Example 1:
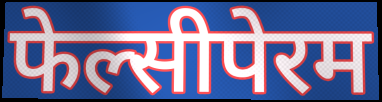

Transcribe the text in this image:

फेल्सीपेरम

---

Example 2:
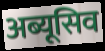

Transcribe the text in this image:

अब्यूसिव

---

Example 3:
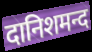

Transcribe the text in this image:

दानिशमन्द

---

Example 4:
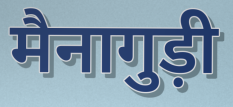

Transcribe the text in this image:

मैनागुड़ी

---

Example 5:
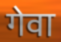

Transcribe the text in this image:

गेवा